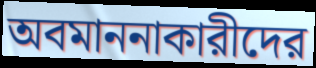
অবমাননাকারীদের